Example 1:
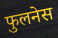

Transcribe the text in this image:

फुलनेस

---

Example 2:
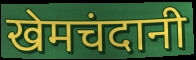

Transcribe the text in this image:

खेमचंदानी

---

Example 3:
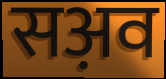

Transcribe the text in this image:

सअ़व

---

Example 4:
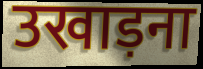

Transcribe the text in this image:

उखाड़ना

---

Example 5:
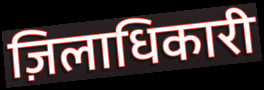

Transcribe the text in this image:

ज़िलाधिकारी